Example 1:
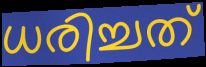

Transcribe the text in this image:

ധരിച്ചത്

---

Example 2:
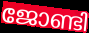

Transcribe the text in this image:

ജോണ്ടി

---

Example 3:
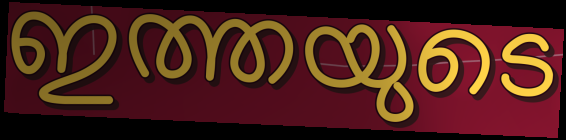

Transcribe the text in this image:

ഇത്തയുടെ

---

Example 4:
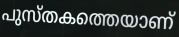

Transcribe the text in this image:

പുസ്തകത്തെയാണ്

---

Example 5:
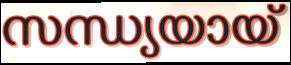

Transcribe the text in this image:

സന്ധ്യയായ്